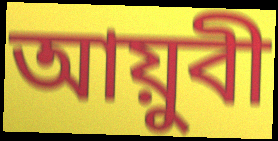
আয়ুবী